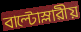
বাল্টোস্লাৱীয়